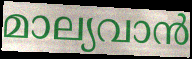
മാല്യവാൻ